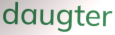
daugter